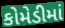
કોમેડીમાં